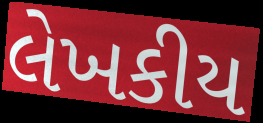
લેખકીય